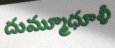
దుమ్మూధూళీ